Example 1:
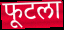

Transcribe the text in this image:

फूटला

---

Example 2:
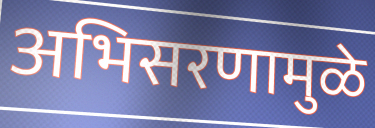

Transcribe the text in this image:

अभिसरणामुळे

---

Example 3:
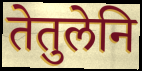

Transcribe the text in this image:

तेतुलेनि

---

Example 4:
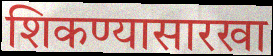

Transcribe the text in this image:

शिकण्यासारखा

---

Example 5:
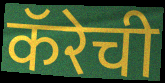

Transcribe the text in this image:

कॅरेची